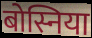
बोस्निया